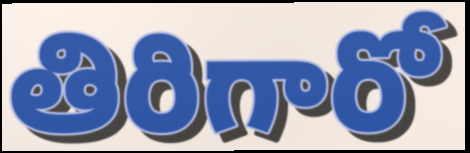
తిరిగారో